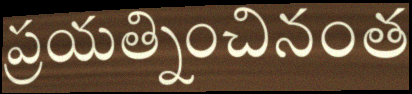
ప్రయత్నించినంత